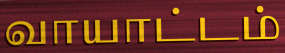
வாயாட்டம்